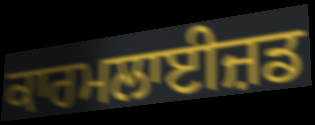
ਕਾਰਮਲਾਈਜ਼ਡ